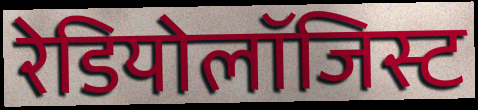
रेडियोलॉजिस्ट